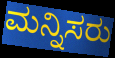
ಮನ್ನಿಸರು